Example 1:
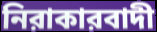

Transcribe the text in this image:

নিরাকারবাদী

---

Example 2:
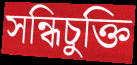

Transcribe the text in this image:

সন্ধিচুক্তি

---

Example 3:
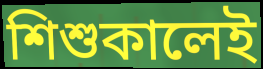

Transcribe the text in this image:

শিশুকালেই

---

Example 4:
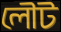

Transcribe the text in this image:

লৌট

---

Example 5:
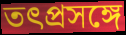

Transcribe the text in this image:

তৎপ্রসঙ্গে